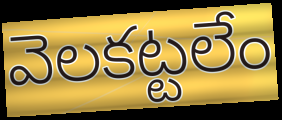
వెలకట్టలేం